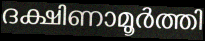
ദക്ഷിണാമൂർത്തി